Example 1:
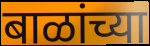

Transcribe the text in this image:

बाळांच्या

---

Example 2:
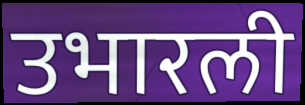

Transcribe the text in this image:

उभारली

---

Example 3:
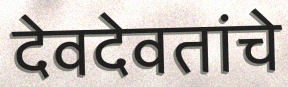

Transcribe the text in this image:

देवदेवतांचे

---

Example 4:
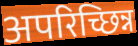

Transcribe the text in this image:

अपरिच्छिन्न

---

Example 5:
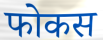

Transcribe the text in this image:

फोकस